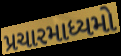
પ્રચારમાધ્યમો